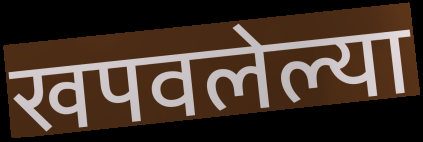
खपवलेल्या